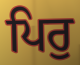
ਪਿਰੁ